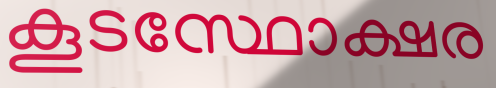
കൂടസ്ഥോക്ഷര